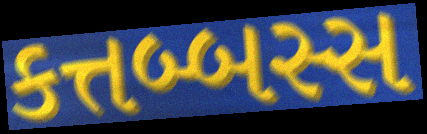
કત્તબ્બસ્સ